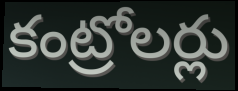
కంట్రోలర్లు